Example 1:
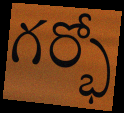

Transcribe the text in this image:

గర్భో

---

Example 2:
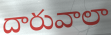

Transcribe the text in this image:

దారువాలా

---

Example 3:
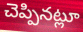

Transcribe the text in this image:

చెప్పినట్లూ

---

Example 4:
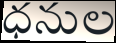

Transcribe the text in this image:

ధనుల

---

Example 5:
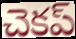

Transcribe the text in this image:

చెకప్